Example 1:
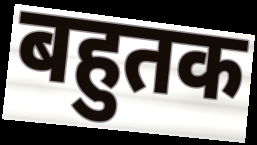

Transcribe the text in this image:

बहुतक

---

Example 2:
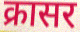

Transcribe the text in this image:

क्रासर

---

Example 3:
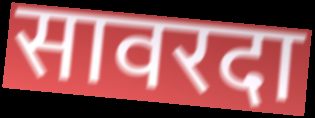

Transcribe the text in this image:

सावरदा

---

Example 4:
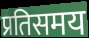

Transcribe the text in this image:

प्रतिसमय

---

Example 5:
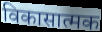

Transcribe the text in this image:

विकासात्मक